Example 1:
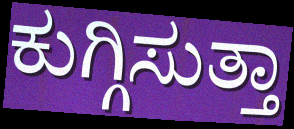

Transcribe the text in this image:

ಕುಗ್ಗಿಸುತ್ತಾ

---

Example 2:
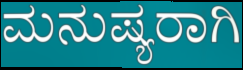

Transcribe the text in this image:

ಮನುಷ್ಯರಾಗಿ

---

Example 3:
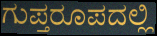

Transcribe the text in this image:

ಗುಪ್ತರೂಪದಲ್ಲಿ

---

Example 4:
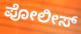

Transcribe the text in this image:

ಪೋಲೀಸ್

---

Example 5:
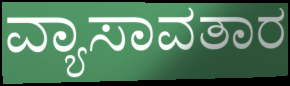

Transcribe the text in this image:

ವ್ಯಾಸಾವತಾರ